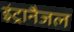
इंट्रानैजल